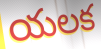
యలక